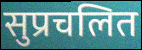
सुप्रचलित